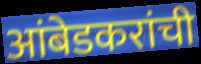
आंबेडकरांची